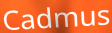
Cadmus